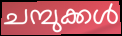
ചമ്പുക്കൾ